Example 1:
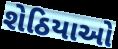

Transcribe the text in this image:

શેઠિયાઓ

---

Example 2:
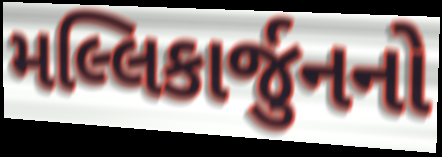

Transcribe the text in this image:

મલ્લિકાર્જુનનો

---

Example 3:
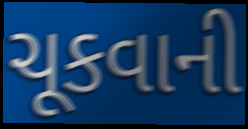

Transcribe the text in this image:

ચૂકવાની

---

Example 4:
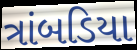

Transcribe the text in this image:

ત્રાંબડિયા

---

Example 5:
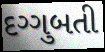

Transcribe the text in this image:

દગ્ગુબતી